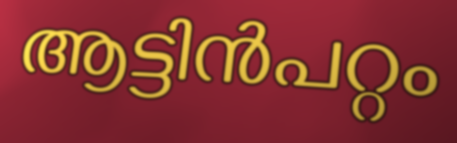
ആട്ടിൻപറ്റം